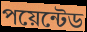
পয়েন্টেড